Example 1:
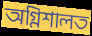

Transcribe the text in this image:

অগ্নিশালত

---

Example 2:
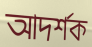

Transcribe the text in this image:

আদৰ্শক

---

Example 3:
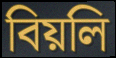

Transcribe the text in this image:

বিয়লি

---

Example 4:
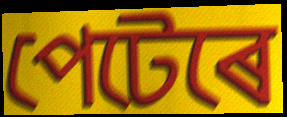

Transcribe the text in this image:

পেটেৰে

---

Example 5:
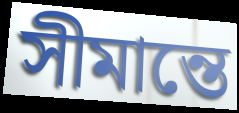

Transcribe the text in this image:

সীমান্তে